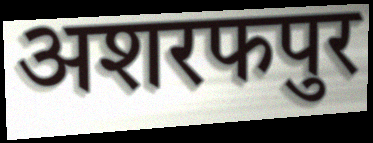
अशरफपुर